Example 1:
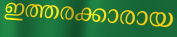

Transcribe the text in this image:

ഇത്തരക്കാരായ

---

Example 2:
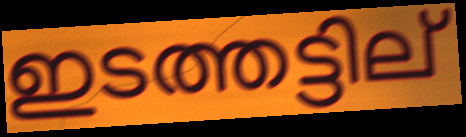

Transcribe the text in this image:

ഇടത്തട്ടില്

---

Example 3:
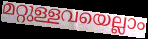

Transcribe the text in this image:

മറ്റുള്ളവയെല്ലാം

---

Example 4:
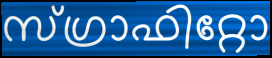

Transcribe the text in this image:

സ്ഗ്രാഫിറ്റോ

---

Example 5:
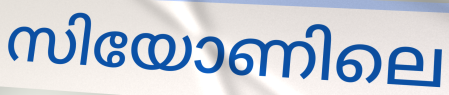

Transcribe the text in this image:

സിയോണിലെ